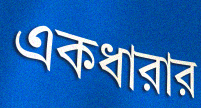
একধারার